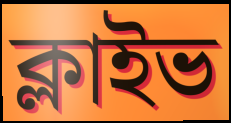
ক্লাইভ